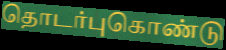
தொடர்புகொண்டு